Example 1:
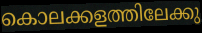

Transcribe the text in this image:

കൊലക്കളത്തിലേക്കു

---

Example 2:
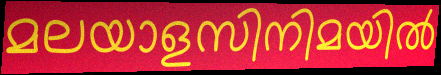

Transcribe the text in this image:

മലയാളസിനിമയിൽ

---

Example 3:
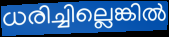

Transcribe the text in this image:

ധരിച്ചില്ലെങ്കിൽ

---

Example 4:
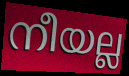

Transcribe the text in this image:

നീയല്ല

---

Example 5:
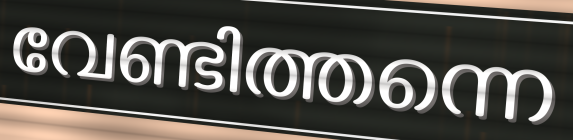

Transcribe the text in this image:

വേണ്ടിത്തന്നെ